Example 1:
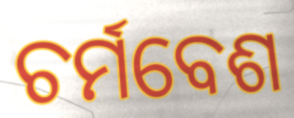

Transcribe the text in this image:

ଚର୍ମବେଶ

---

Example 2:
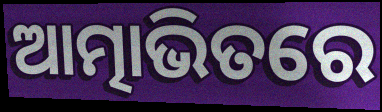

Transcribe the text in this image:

ଆତ୍ମାଭିତରେ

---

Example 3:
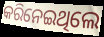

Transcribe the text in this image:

କରିନେଇଥିଲେ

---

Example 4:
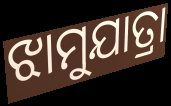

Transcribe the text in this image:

ଝାମୁଯାତ୍ରା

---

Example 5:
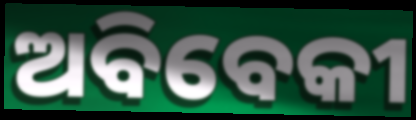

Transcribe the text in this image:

ଅବିବେକୀ